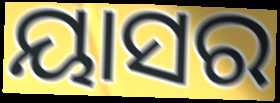
ୟାସର